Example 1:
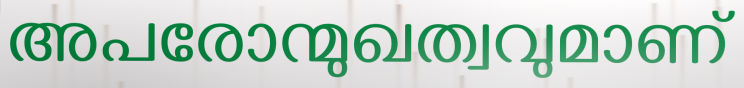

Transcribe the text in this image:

അപരോന്മുഖത്വവുമാണ്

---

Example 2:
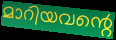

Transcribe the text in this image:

മാറിയവന്റെ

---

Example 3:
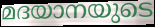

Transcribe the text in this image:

മദയാനയുടെ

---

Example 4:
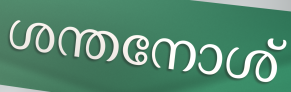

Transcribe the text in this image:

ശന്തനോശ്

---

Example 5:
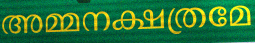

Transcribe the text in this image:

അമ്മനക്ഷത്രമേ